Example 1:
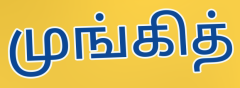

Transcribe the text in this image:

முங்கித்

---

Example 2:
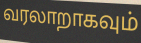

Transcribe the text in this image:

வரலாறாகவும்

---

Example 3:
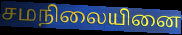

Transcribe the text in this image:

சமநிலையினை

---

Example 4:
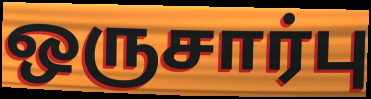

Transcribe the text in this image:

ஒருசார்பு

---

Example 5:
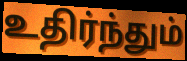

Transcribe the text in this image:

உதிர்ந்தும்